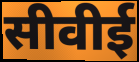
सीवीई